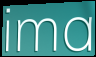
ima